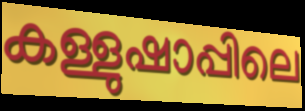
കള്ളുഷാപ്പിലെ